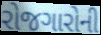
રોજગારોની